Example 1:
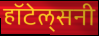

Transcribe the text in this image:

हॉटेल्सनी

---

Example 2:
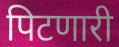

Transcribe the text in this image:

पिटणारी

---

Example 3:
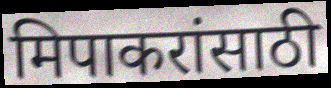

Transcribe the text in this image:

मिपाकरांसाठी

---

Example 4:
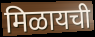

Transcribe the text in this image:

मिळायची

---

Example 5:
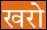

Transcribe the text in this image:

खरो